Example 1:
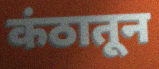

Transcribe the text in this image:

कंठातून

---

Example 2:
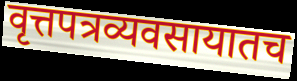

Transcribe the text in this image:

वृत्तपत्रव्यवसायातच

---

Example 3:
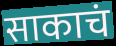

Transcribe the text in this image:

साकाचं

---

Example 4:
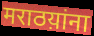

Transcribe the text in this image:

मराठय़ांना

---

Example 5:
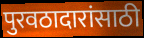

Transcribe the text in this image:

पुरवठादारांसाठी